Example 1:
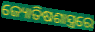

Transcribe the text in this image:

ଜ୍ୟୋତିଷଶାସ୍ତ୍ରରେ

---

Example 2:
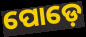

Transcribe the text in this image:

ପୋଡ଼େ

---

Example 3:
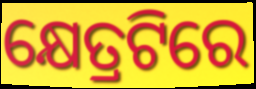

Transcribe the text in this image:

କ୍ଷେତ୍ରଟିରେ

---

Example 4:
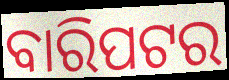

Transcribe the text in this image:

ବାରିପଟର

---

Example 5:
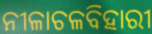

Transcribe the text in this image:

ନୀଳାଚଳବିହାରୀ